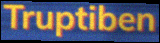
Truptiben